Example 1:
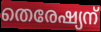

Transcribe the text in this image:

തെരേഷ്യന്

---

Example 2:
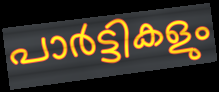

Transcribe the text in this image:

പാർട്ടികളും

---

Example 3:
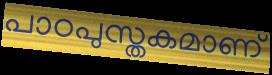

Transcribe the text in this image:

പാഠപുസ്തകമാണ്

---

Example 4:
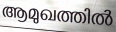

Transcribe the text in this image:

ആമുഖത്തിൽ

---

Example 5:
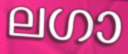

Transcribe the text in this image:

ലഗാ